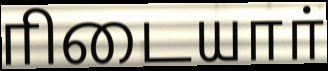
ரிடையார்